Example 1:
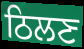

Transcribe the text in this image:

ਠਿਲਣ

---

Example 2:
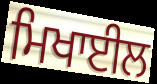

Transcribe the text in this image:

ਮਿਖਾਈਲ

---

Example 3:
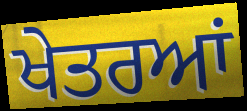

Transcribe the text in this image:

ਖੇਤਰਆਂ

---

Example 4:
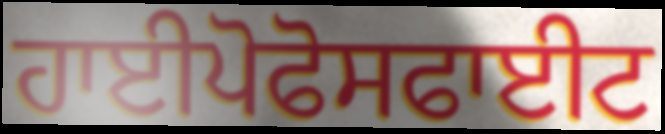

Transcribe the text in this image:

ਹਾਈਪੋਫੋਸਫਾਈਟ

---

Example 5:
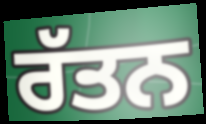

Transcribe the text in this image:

ਰੱਤਨ